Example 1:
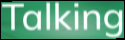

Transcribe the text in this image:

Talking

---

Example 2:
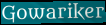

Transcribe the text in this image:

Gowariker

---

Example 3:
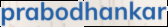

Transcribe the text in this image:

prabodhankar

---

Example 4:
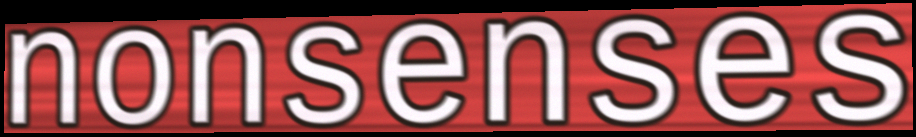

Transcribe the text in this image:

nonsenses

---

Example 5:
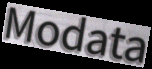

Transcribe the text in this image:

Modata